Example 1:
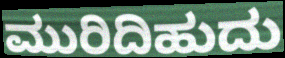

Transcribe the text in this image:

ಮುರಿದಿಹುದು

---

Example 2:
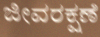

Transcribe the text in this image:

ಜೀವರಕ್ಷಣೆ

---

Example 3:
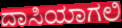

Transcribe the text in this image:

ದಾಸಿಯಾಗಲಿ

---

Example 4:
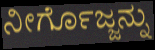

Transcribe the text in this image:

ನೀರ್ಗೊಜ್ಜನ್ನು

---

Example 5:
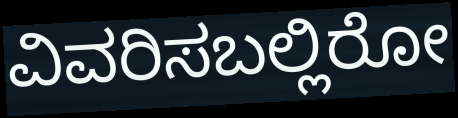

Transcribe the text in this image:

ವಿವರಿಸಬಲ್ಲಿರೋ